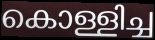
കൊള്ളിച്ച